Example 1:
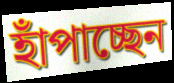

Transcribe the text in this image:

হাঁপাচ্ছেন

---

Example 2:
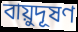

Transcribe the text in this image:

বায়ুদূষণ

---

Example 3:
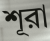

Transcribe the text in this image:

শূরা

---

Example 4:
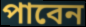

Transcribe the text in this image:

পাবেন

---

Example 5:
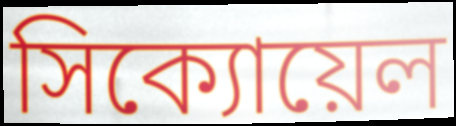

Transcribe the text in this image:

সিক্যোয়েল